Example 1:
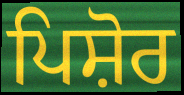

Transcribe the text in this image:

ਪਿਸ਼ੋਰ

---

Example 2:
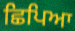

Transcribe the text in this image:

ਛਿਪਿਆ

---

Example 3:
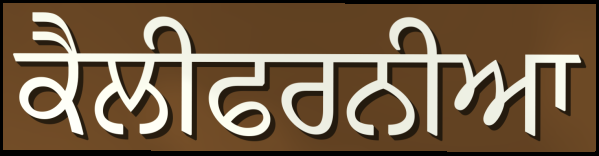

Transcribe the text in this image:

ਕੈਲੀਫਰਨੀਆ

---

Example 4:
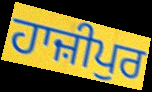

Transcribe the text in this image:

ਹਾਜ਼ੀਪੁਰ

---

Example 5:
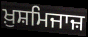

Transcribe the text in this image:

ਖ਼ੁਸ਼ਮਿਜਾਜ਼